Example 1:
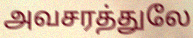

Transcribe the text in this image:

அவசரத்துலே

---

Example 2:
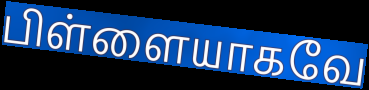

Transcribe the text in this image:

பிள்ளையாகவே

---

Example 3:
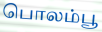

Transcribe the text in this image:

பொலம்பூ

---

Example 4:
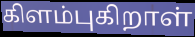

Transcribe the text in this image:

கிளம்புகிறாள்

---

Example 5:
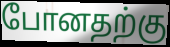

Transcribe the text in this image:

போனதற்கு